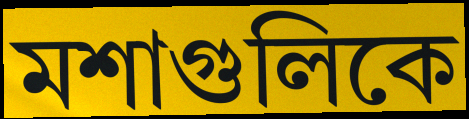
মশাগুলিকে